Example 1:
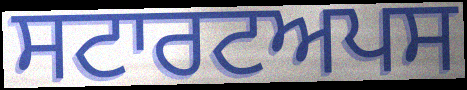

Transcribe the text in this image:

ਸਟਾਰਟਅਪਸ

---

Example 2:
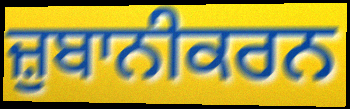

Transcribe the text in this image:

ਜ਼ੁਬਾਨੀਕਰਨ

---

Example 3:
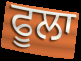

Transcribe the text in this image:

ਫੂਲਾ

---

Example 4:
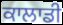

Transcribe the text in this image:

ਕਾਲਾਡੀ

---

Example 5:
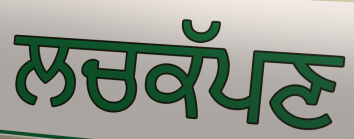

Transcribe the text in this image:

ਲਚਕੱਪਣ